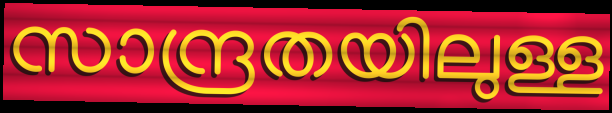
സാന്ദ്രതയിലുള്ള